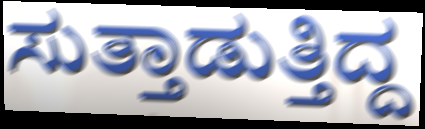
ಸುತ್ತಾಡುತ್ತಿದ್ದ